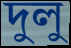
দুলু